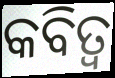
କବିତ୍ବ